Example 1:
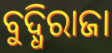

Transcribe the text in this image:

ବୁଦ୍ଧିରାଜା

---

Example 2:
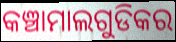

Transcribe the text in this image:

କଞ୍ଚାମାଲଗୁଡିକର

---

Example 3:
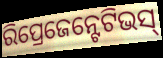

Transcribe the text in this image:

ରିପ୍ରେଜେନ୍ଟେଟିଭସ୍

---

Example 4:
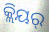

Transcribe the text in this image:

କ୍ଲିୟର୍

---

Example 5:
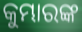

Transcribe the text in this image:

କୁମ୍ଭାରଙ୍କ